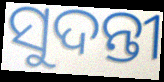
ସୁଦନ୍ତୀ